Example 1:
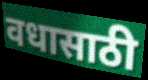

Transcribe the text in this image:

वधासाठी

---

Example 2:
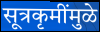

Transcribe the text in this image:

सूत्रकृमींमुळे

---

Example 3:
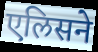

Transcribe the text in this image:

एलिसने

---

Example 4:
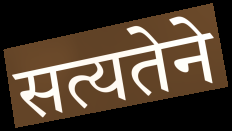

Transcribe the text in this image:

सत्यतेने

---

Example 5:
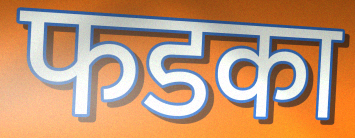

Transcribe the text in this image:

फडका